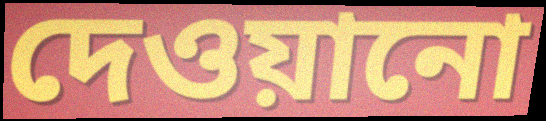
দেওয়ানো